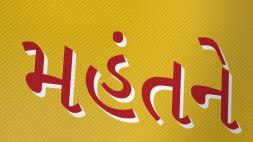
મહંતને